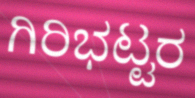
ಗಿರಿಭಟ್ಟರ